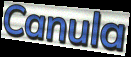
Canula